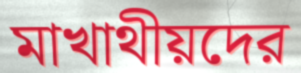
মাখাথীয়দের